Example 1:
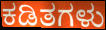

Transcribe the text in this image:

ಕಡಿತಗಳು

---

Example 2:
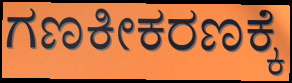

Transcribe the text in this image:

ಗಣಕೀಕರಣಕ್ಕೆ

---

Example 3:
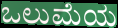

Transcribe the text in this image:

ಒಲುಮೆಯ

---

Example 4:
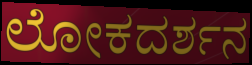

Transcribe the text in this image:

ಲೋಕದರ್ಶನ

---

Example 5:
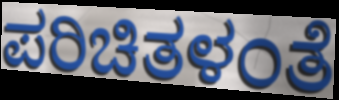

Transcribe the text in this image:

ಪರಿಚಿತಳಂತೆ